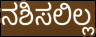
ನಶಿಸಲಿಲ್ಲ